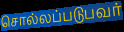
சொல்லப்படுபவர்